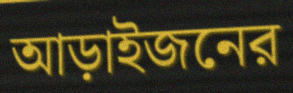
আড়াইজনের